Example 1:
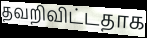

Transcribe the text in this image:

தவறிவிட்டதாக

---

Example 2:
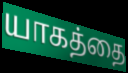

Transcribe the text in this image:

யாகத்தை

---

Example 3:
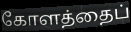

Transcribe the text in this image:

கோளத்தைப்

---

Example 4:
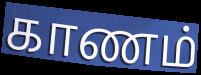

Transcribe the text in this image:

காணம்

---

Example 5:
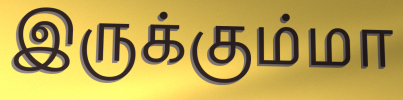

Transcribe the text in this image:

இருக்கும்மா